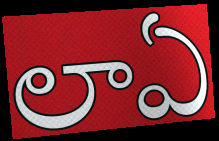
లాఏ